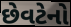
છેવટેનો